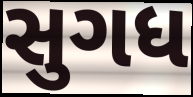
સુગધ